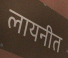
लायनीत